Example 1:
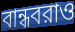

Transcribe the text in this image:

বান্ধবরাও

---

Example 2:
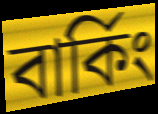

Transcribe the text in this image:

বার্কিং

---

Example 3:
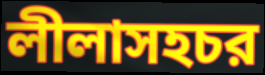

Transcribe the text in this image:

লীলাসহচর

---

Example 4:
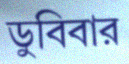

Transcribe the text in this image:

ডুবিবার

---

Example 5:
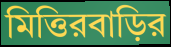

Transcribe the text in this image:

মিত্তিরবাড়ির